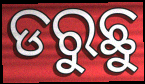
ଡରୁଛୁ